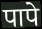
पापे